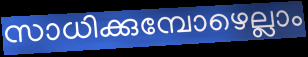
സാധിക്കുമ്പോഴെല്ലാം